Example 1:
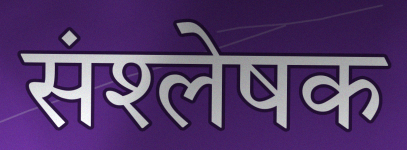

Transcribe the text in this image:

संश्लेषक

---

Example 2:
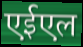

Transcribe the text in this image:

एईएल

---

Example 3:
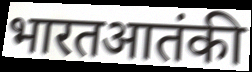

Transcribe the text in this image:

भारतआतंकी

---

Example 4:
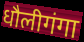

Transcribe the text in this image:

धौलीगंगा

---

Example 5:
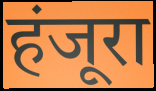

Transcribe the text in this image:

हंजूरा